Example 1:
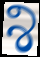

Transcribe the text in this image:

శి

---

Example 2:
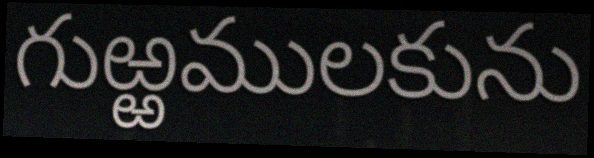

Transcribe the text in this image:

గుఱ్ఱములకును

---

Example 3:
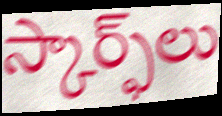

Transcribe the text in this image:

స్కార్ఫ్‌లు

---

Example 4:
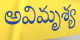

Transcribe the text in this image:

అవిమృశ్య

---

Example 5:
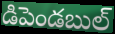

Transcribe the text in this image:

డిపెండబుల్